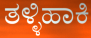
ತಳ್ಳಿಹಾಕಿ